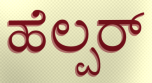
ಹೆಲ್ಪರ್